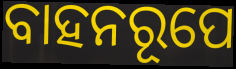
ବାହନରୂପେ